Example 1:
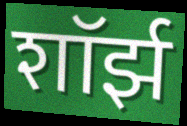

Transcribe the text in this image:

शॉर्झ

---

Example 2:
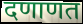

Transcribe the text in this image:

दणाणत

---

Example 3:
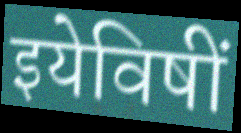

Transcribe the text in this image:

इयेविषीं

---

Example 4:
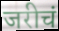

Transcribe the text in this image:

जरीचं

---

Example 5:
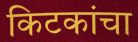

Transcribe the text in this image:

किटकांचा